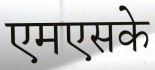
एमएसके